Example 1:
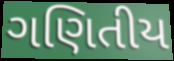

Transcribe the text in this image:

ગણિતીય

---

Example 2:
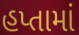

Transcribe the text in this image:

હપ્તામાં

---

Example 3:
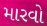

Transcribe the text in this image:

મારવો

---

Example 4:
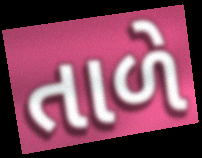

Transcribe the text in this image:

તાળે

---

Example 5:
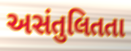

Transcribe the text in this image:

અસંતુલિતતા